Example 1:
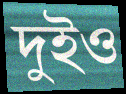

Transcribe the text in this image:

দুইও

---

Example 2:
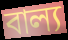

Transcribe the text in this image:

বাল্য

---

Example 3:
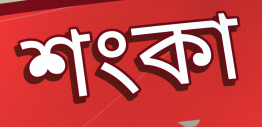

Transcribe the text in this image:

শংকা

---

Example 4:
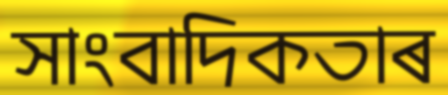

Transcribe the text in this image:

সাংবাদিকতাৰ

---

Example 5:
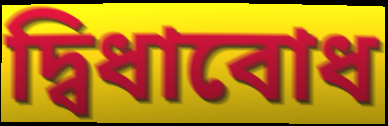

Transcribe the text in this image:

দ্বিধাবোধ